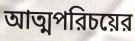
আত্মপরিচয়ের